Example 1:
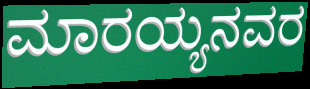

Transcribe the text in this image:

ಮಾರಯ್ಯನವರ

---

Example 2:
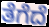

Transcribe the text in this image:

ತೆಗೆದೆ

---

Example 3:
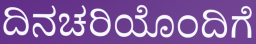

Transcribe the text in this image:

ದಿನಚರಿಯೊಂದಿಗೆ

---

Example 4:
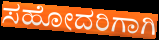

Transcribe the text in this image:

ಸಹೋದರಿಗಾಗಿ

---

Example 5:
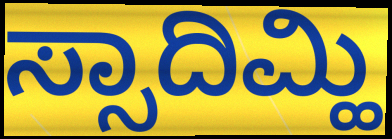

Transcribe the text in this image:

ಸ್ಸಾದಿಮ್ಹಿ